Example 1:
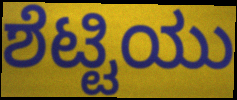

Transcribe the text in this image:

ಶೆಟ್ಟಿಯು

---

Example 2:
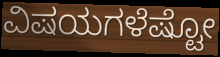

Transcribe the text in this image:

ವಿಷಯಗಳೆಷ್ಟೋ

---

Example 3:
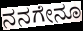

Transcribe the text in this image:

ನನಗೇನೂ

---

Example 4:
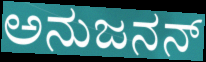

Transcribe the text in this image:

ಅನುಜನನ್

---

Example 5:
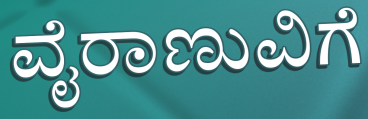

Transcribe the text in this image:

ವೈರಾಣುವಿಗೆ